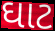
ઘાટ